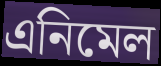
এনিমেল